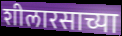
शीलारसाच्या